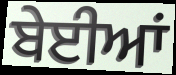
ਬੇਈਆਂ